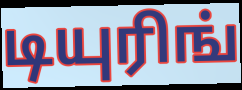
டியுரிங்